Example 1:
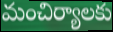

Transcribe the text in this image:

మంచిర్యాలకు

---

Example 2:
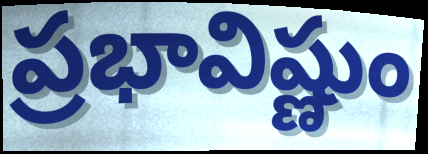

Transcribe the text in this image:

ప్రభావిష్ణుం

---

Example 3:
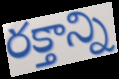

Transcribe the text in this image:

రక్తాన్ని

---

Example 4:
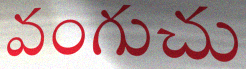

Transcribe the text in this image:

వంగుచు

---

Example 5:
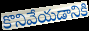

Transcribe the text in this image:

కొనివేయడానికి